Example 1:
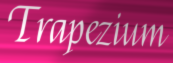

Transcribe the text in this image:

Trapezium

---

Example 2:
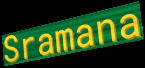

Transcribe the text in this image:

Sramana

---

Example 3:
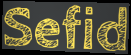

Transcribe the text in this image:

Sefid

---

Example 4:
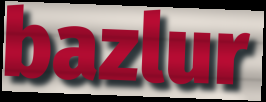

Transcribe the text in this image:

bazlur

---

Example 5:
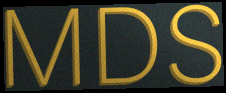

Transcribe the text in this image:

MDS